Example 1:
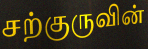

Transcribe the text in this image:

சற்குருவின்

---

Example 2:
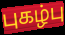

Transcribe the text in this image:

புகழ்பு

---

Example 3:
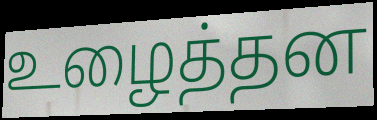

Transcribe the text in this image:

உழைத்தன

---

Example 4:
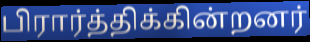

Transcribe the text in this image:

பிரார்த்திக்கின்றனர்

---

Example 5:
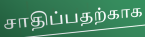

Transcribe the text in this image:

சாதிப்பதற்காக